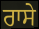
ਰਾਸੇ